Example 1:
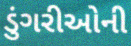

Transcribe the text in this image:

ડુંગરીઓની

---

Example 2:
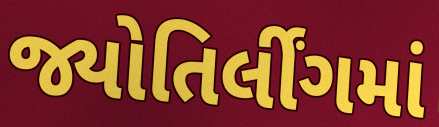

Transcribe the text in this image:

જ્યોતિર્લીંગમાં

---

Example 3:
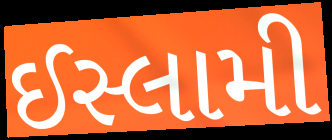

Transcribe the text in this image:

ઈસ્લામી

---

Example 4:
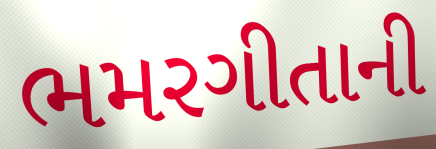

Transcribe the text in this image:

ભમરગીતાની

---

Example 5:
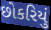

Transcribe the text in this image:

છોકરિયું